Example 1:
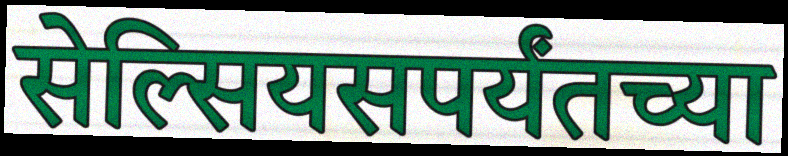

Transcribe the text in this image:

सेल्सियसपर्यंतच्या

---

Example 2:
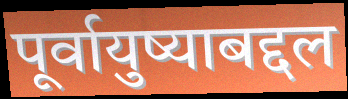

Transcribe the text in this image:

पूर्वायुष्याबद्दल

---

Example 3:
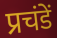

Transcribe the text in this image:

प्रचंडें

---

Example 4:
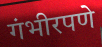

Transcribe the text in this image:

गंभीरपणे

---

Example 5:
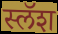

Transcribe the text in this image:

स्लॅश